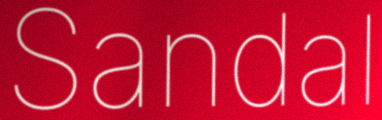
Sandal